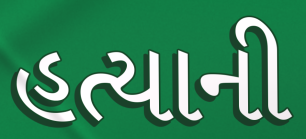
હત્યાની